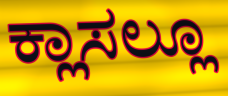
ಕ್ಲಾಸಲ್ಲೂ